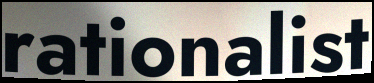
rationalist